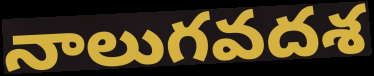
నాలుగవదశ